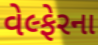
વેલ્ફેરના